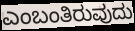
ಎಂಬಂತಿರುವುದು